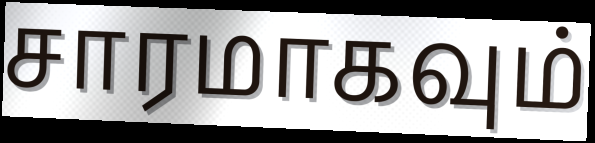
சாரமாகவும்